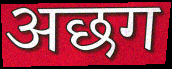
अछग